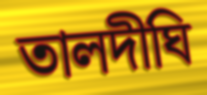
তালদীঘি